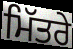
ਮਿੱਤਰੇ